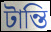
টান্তি